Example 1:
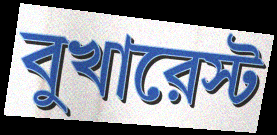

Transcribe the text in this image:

বুখারেস্ট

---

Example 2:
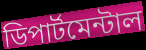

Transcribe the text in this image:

ডিপার্টমেন্টাল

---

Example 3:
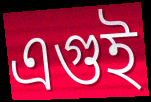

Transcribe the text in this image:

এগুই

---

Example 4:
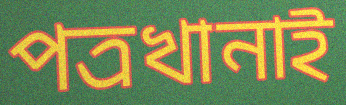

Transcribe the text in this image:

পত্রখানাই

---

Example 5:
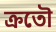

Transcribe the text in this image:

ক্রতৌ